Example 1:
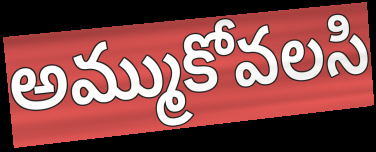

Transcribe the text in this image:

అమ్ముకోవలసి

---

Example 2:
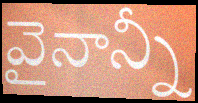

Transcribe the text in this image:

వైనాన్నీ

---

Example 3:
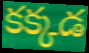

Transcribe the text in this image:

కక్కడ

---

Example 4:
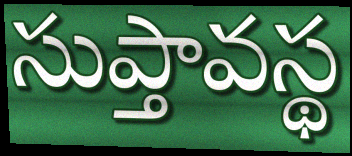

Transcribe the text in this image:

సుప్తావస్థ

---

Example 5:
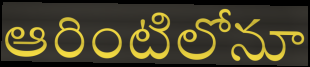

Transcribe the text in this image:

ఆరింటిలోనూ